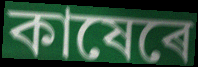
কাষেৰে